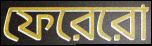
ফেরেরো